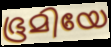
ഭൂമിയേ